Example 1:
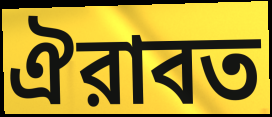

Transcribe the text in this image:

ঐরাবত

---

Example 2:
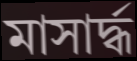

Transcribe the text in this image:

মাসার্দ্ধ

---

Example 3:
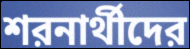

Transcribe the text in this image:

শরনার্থীদের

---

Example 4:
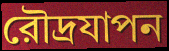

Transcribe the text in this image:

রৌদ্রযাপন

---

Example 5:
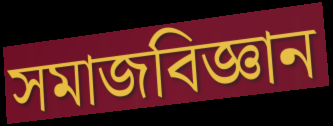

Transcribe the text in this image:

সমাজবিজ্ঞান